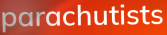
parachutists